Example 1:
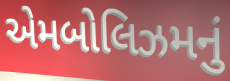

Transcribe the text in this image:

એમબોલિઝમનું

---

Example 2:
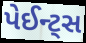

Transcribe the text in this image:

પેઈન્ટ્સ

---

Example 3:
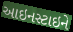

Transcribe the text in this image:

આઇનસ્ટાઇને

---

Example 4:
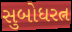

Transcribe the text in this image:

સુબોધરત્ન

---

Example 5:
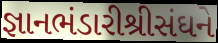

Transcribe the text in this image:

જ્ઞાનભંડારીશ્રીસંઘને